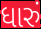
ધારું